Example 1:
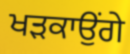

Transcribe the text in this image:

ਖੜਕਾਉਂਗੇ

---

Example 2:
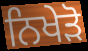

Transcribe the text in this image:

ਨਿਖੇੜੋ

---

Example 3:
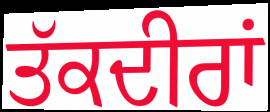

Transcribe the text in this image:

ਤੱਕਦੀਰਾਂ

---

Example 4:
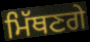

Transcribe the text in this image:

ਮਿੱਥਣਗੇ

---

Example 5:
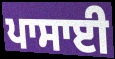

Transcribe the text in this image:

ਪਾਸਾਈ